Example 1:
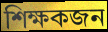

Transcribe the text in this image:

শিক্ষকজন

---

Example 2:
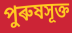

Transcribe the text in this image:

পুৰুষসূক্ত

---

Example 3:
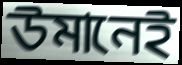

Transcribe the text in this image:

উমানেই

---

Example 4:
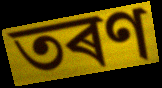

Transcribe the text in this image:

তৰণ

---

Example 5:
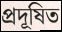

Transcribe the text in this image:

প্ৰদূষিত